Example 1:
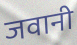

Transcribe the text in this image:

जवानी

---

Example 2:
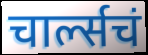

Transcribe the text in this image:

चार्ल्सचं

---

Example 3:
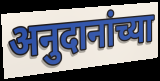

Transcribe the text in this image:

अनुदानांच्या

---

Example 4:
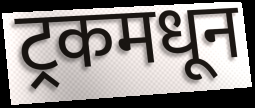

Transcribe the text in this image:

ट्रकमधून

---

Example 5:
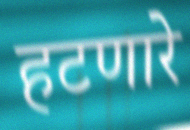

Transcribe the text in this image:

हटणारे